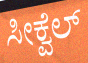
ಸೀಕ್ವೆಲ್